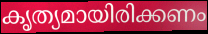
കൃത്യമായിരിക്കണം